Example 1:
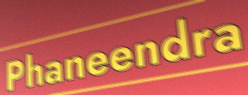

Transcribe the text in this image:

Phaneendra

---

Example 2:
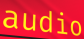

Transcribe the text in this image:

audio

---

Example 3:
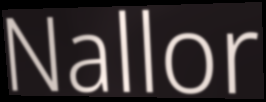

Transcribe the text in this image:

Nallor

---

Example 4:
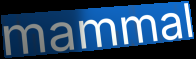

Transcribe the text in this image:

mammal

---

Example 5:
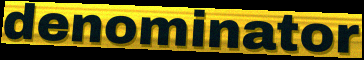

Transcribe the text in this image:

denominator